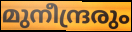
മുനീന്ദ്രരും